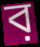
ব়